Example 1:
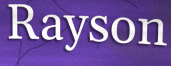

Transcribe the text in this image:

Rayson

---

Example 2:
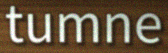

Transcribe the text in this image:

tumne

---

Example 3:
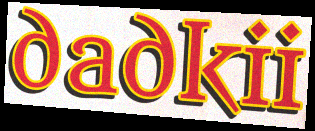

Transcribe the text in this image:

dadkii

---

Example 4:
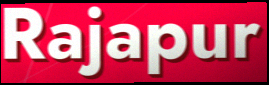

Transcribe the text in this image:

Rajapur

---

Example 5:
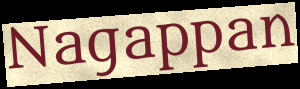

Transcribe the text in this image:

Nagappan